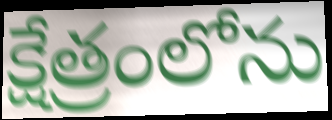
క్షేత్రంలోను